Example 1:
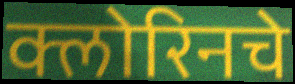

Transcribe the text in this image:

क्लोरिनचे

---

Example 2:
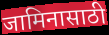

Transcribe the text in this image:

जामिनासाठी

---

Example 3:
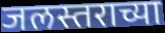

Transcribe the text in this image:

जलस्तराच्या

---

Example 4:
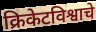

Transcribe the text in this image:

क्रिकेटविश्वाचे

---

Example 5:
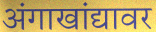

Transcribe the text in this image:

अंगाखांद्यावर